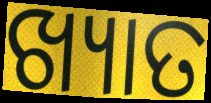
ଖ୍ୟାତ